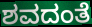
ಶವದಂತೆ